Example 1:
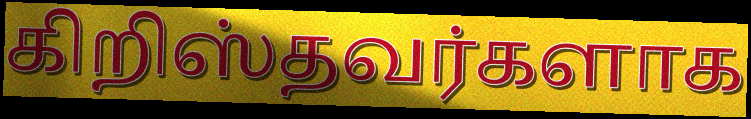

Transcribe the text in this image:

கிறிஸ்தவர்களாக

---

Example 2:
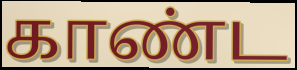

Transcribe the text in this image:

காண்ட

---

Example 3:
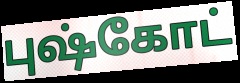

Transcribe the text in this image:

புஷ்கோட்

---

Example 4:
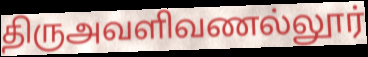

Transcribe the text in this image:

திருஅவளிவணல்லூர்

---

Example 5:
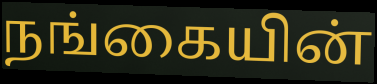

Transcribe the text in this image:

நங்கையின்